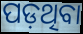
ପଡ଼ଥିବା